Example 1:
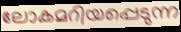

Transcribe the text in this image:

ലോകമറിയപ്പെടുന്ന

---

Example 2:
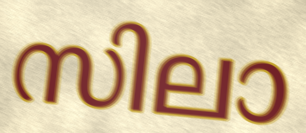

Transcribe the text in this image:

സിലാ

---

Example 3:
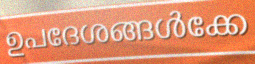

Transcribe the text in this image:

ഉപദേശങ്ങൾക്കേ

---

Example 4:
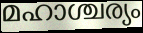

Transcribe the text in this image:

മഹാശ്ചര്യം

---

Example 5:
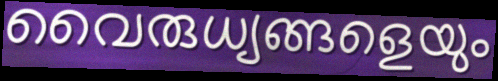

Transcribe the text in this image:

വൈരുധ്യങ്ങളെയും